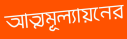
আত্মমূল্যায়নের